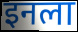
इनला